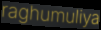
raghumuliya